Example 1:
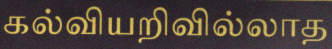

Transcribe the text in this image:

கல்வியறிவில்லாத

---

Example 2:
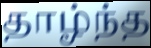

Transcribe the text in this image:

தாழ்ந்த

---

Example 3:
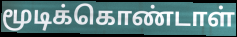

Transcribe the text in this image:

மூடிக்கொண்டாள்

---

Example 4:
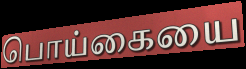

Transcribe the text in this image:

பொய்கையை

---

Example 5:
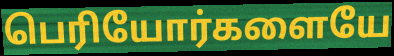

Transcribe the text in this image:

பெரியோர்களையே